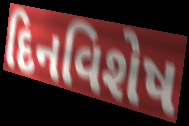
દિનવિશેષ